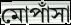
মোপাঁসা